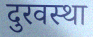
दुरवस्था